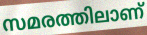
സമരത്തിലാണ്